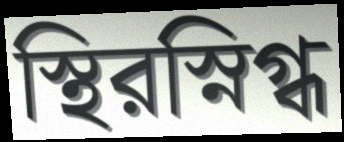
স্থিরস্নিগ্ধ